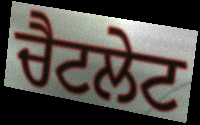
ਚੈਟਲੇਟ